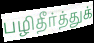
பழிதீர்த்துக்